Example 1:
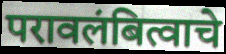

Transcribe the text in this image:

परावलंबित्वाचे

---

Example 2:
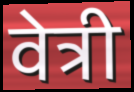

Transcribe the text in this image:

वेत्री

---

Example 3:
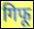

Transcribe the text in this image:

गिफू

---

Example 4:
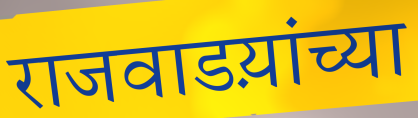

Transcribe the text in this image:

राजवाडय़ांच्या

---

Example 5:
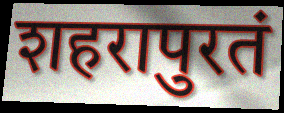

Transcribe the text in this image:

शहरापुरतं